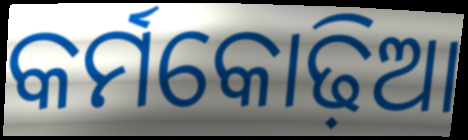
କର୍ମକୋଢ଼ିଆ